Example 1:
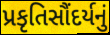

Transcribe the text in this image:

પ્રકૃતિસૌંદર્યનું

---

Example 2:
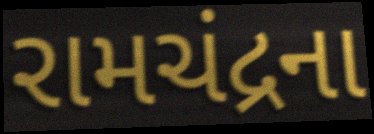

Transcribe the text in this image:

રામચંદ્રના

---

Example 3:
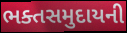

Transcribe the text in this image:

ભક્તસમુદાયની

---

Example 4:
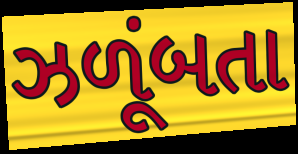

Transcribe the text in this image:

ઝળૂંબતા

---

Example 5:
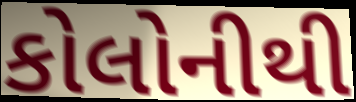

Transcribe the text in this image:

કોલોનીથી